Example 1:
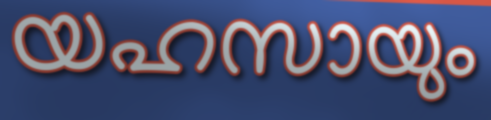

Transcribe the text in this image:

യഹസായും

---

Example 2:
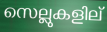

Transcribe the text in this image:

സെല്ലുകളില്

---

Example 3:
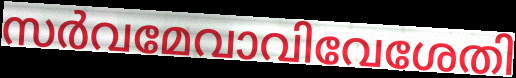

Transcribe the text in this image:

സർവമേവാവിവേശേതി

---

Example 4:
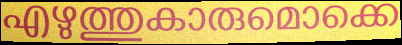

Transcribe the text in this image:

എഴുത്തുകാരുമൊക്കെ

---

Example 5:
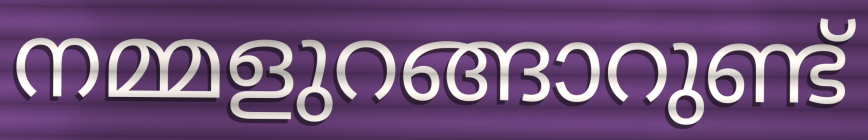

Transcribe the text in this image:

നമ്മളുറങ്ങാറുണ്ട്